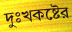
দুঃখকষ্টের